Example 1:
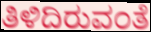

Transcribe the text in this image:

ತಿಳಿದಿರುವಂತೆ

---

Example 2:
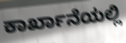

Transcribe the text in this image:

ಕಾರ್ಖಾನೆಯಲ್ಲಿ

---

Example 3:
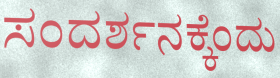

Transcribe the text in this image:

ಸಂದರ್ಶನಕ್ಕೆಂದು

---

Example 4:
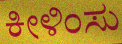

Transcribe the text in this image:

ಕೀಳಿಂಸು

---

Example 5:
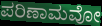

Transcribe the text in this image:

ಪರಿಣಾಮವೋ